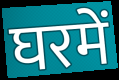
घरमें